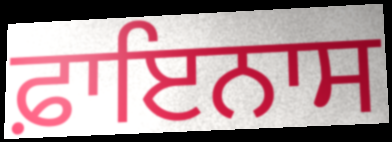
ਫ਼ਾਇਨਾਸ